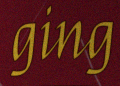
ging